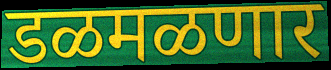
डळमळणार